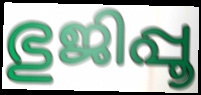
ഭുജിപ്പൂ